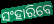
ସଂହାରିବେ